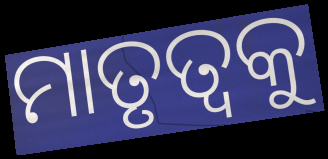
ମାତୃତ୍ବକୁ